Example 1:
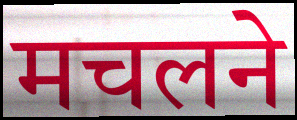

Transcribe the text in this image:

मचलने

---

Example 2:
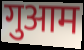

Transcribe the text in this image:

गुआम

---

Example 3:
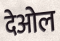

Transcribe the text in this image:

देओल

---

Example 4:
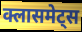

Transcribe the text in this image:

क्लासमेट्स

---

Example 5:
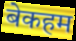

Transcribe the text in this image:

बेकहम